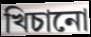
খিচানো